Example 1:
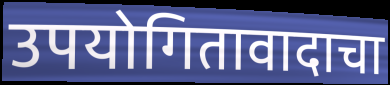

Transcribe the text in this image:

उपयोगितावादाचा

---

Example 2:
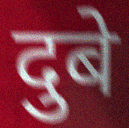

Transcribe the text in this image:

दुबे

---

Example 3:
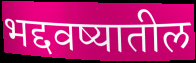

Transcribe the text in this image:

भद्दवष्यातील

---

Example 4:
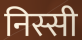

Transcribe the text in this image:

निस्सी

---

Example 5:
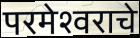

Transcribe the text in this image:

परमेश्वराचे